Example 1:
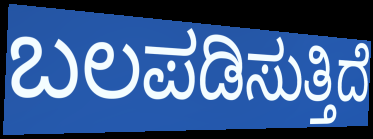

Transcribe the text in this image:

ಬಲಪಡಿಸುತ್ತಿದೆ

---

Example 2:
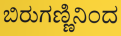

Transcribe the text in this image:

ಬಿರುಗಣ್ಣಿನಿಂದ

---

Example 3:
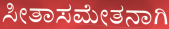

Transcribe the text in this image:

ಸೀತಾಸಮೇತನಾಗಿ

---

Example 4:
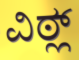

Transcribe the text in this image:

ವಿಠ್ಲ್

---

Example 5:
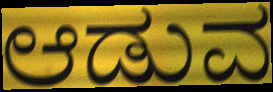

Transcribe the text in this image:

ಆಡುವ